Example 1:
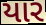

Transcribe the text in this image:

યાર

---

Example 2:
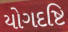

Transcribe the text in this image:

યોગદષ્ટિ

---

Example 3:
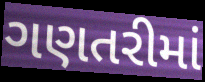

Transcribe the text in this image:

ગણતરીમાં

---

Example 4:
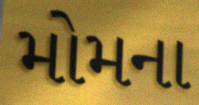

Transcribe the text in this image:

મોમના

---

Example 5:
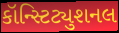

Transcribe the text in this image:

કૉન્સ્ટિટ્યુશનલ